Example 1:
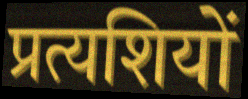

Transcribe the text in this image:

प्रत्यशियों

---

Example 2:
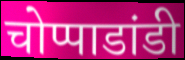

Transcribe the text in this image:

चोप्पाडांडी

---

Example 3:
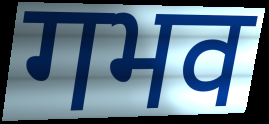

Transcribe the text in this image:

गभव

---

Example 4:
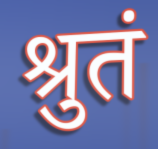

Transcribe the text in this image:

श्रुतं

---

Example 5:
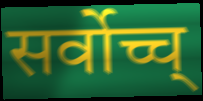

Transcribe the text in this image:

सर्वोच्च्